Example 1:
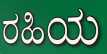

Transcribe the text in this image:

ರಹಿಯ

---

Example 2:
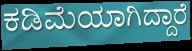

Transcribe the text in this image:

ಕಡಿಮೆಯಾಗಿದ್ದಾರೆ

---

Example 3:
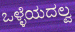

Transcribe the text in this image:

ಒಳ್ಳೆಯದಲ್ವ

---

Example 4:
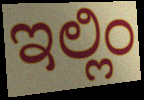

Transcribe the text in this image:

ಇಲ್ಲಿಂ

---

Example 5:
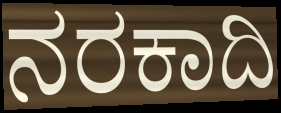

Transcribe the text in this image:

ನರಕಾದಿ